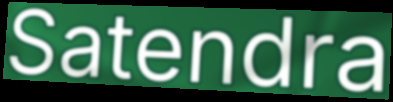
Satendra